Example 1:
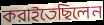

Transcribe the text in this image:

করাইতেছিলেন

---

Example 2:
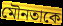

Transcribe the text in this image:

মৌনতাকে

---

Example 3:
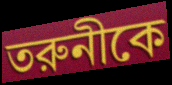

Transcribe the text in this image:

তরুনীকে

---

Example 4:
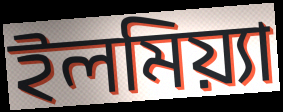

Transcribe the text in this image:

ইলমিয়্যা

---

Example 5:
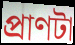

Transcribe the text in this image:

প্রাণটা